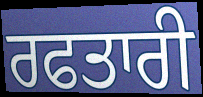
ਰਫਤਾਰੀ